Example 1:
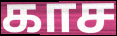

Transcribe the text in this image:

காச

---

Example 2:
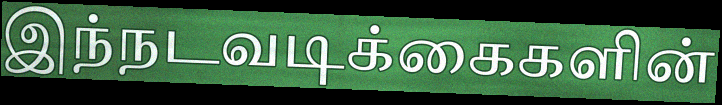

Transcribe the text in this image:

இந்நடவடிக்கைகளின்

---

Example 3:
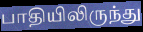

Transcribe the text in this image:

பாதியிலிருந்து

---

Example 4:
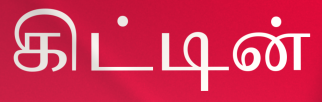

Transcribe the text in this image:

கிட்டின்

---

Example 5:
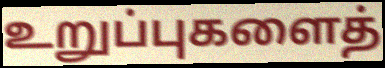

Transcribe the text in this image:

உறுப்புகளைத்